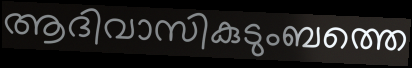
ആദിവാസികുടുംബത്തെ